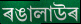
ৰঙালাউৰ